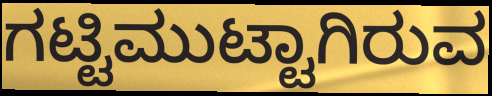
ಗಟ್ಟಿಮುಟ್ಟಾಗಿರುವ